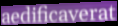
aedificaverat